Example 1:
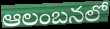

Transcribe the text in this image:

ఆలంబనలో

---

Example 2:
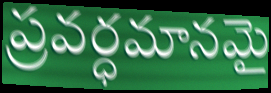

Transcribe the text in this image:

ప్రవర్ధమానమై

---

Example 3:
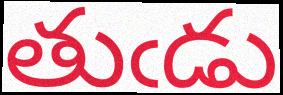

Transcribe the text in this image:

తుఁడు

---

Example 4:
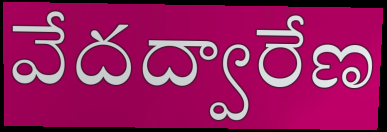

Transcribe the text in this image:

వేదద్వారేణ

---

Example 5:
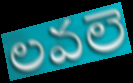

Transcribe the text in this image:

లవలె